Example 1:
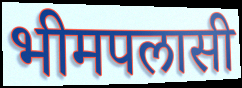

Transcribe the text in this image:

भीमपलासी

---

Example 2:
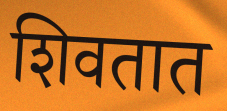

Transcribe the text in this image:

शिवतात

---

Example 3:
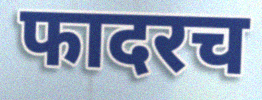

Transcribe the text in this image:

फादरच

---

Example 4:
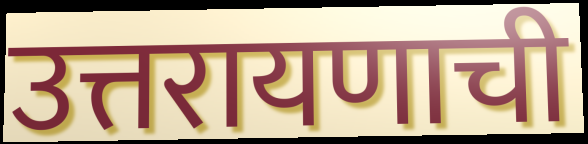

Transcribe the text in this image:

उत्तरायणाची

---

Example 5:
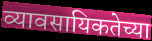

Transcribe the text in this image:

व्यावसायिकतेच्या